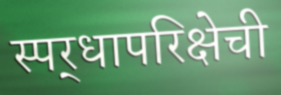
स्पर्धापरिक्षेची